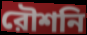
রৌশনি